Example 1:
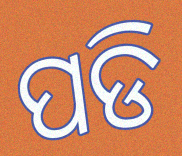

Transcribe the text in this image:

ପଡି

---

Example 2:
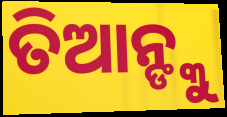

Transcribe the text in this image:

ତିଆନ୍ଙ୍କୁ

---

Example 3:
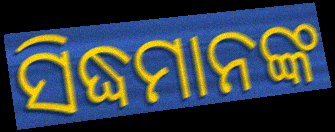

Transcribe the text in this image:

ସିଦ୍ଧମାନଙ୍କ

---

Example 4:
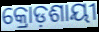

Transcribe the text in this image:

କ୍ରୋଡ଼ଶାୟୀ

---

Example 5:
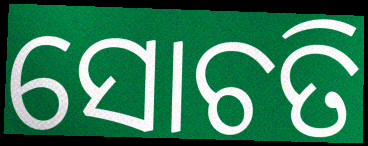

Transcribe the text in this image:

ସୋଚତି